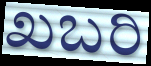
ಖಬರಿ